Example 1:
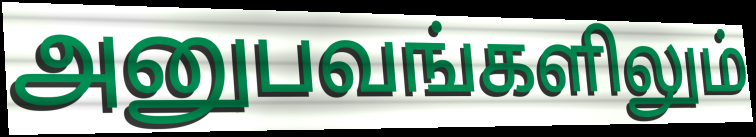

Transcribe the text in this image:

அனுபவங்களிலும்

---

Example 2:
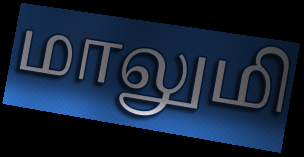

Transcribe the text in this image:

மாலுமி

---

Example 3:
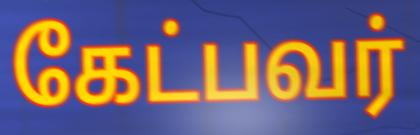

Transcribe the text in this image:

கேட்பவர்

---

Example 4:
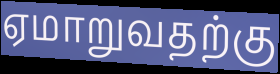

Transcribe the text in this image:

ஏமாறுவதற்கு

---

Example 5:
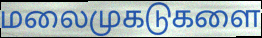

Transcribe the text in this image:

மலைமுகடுகளை